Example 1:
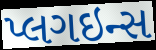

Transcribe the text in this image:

પ્લગઇન્સ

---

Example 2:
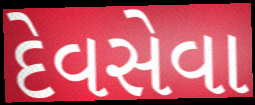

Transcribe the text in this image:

દેવસેવા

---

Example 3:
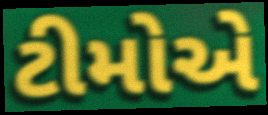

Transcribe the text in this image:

ટીમોએ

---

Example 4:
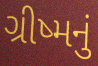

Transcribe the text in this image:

ગ્રીષ્મનું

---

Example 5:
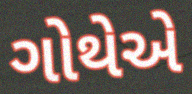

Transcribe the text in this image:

ગોથેએ